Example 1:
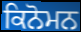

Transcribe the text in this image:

ਕਿਨੋਮਨ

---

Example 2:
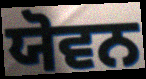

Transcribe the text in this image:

ਯੋਵਨ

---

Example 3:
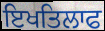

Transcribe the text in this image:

ਇਖਤਿਲਾਫ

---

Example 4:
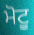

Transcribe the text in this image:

ਮੋਟੂ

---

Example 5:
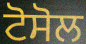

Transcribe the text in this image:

ਟੋਸੋਲ